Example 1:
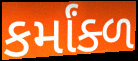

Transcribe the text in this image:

કર્માંક્ળ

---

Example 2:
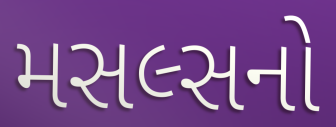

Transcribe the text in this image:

મસલ્સનો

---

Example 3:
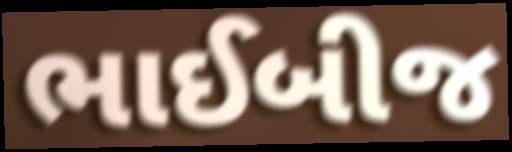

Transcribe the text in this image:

ભાઈબીજ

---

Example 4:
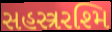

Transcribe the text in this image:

સહસ્ત્રરશ્મિ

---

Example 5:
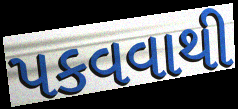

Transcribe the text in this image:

પકવવાથી